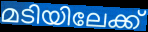
മടിയിലേക്ക്